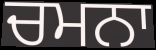
ਚਮਨਾ